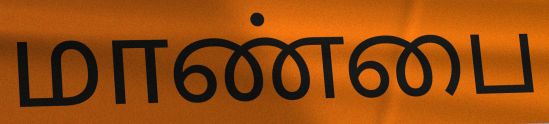
மாண்பை